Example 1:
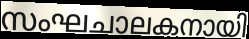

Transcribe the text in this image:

സംഘചാലകനായി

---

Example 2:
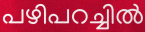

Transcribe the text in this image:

പഴിപറച്ചിൽ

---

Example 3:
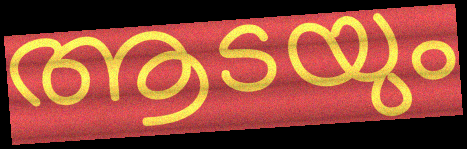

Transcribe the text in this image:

ആടയും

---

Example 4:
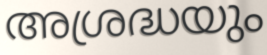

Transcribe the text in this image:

അശ്രദ്ധയും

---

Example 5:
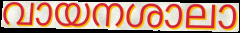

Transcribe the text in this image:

വായനശാലാ